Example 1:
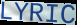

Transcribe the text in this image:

LYRIC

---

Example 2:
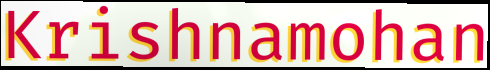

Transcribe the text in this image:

Krishnamohan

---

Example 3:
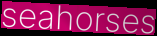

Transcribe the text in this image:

seahorses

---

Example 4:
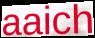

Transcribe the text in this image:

aaich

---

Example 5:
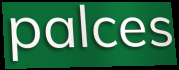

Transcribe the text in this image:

palces